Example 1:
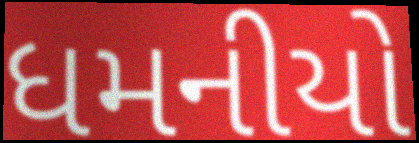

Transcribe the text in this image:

ધમનીયો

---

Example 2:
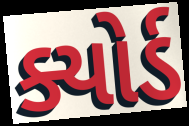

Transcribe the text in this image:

ક્યોર્ડ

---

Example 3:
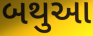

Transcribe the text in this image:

બથુઆ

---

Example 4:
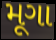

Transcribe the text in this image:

મૂગા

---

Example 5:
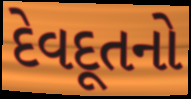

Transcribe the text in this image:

દેવદૂતનો